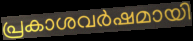
പ്രകാശവർഷമായി